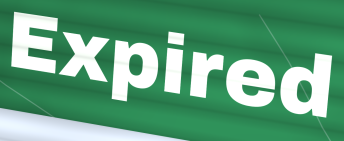
Expired